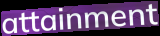
attainment